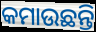
କମାଉଛନ୍ତି